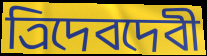
ত্রিদেবদেবী